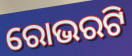
ରୋଭରଟି